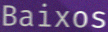
Baixos